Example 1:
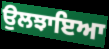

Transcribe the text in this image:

ਉਲਝਾਇਆ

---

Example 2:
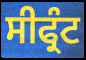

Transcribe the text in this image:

ਸੀਫ੍ਰੰਟ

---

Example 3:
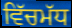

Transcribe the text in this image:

ਵਿੱਚਮੱਧ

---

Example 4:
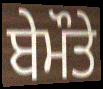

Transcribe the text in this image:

ਬੇਮੌਤੇ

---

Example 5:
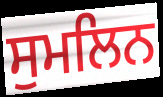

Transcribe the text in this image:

ਸੁਮਲਿਨ